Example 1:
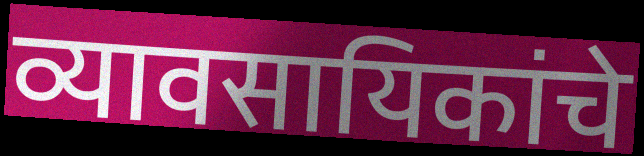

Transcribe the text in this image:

व्यावसायिकांचे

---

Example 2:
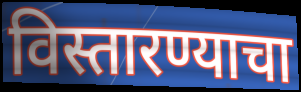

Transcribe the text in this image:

विस्तारण्याचा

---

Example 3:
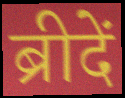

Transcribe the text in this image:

ब्रीदें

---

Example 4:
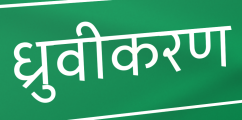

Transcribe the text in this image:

ध्रुवीकरण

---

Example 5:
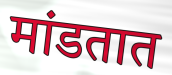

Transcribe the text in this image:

मांडतात